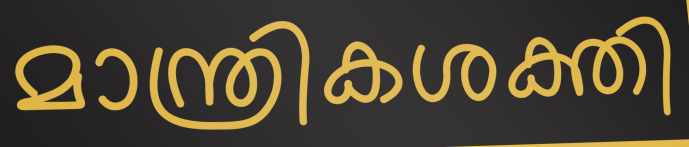
മാന്ത്രികശക്തി